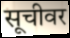
सूचीवर